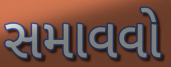
સમાવવો